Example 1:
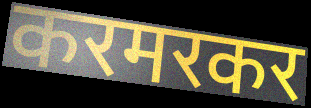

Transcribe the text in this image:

करमरकर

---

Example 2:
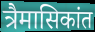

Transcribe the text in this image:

त्रैमासिकांत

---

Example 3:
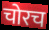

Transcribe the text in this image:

चोरच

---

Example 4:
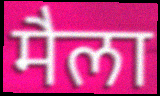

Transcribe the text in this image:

मैला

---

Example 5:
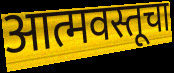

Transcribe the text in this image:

आत्मवस्तूचा